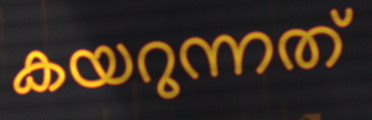
കയറുന്നത്